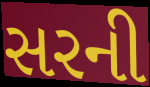
સરની